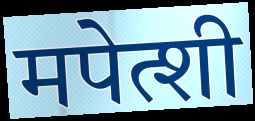
मपेत्शी